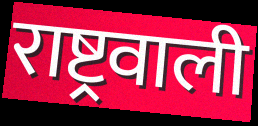
राष्ट्रवाली